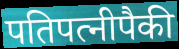
पतिपत्नीपैकी